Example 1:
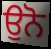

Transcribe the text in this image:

ਉਨੋ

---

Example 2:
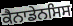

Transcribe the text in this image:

ਕੈਨਾਡੇਨਸਿਸ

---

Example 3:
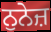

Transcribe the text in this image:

ਨੁਨੇਜ਼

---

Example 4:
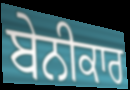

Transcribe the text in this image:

ਬੇਨੀਕਾਰ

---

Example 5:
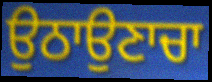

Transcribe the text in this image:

ਉਠਾਉਣਾਚਾ